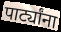
पार्ट्यांना